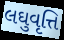
લઘુવૃત્તિ